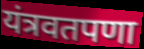
यंत्रवतपणा